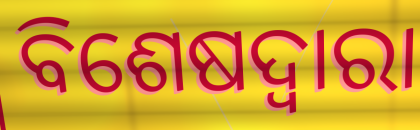
ବିଶେଷଦ୍ଵାରା